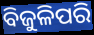
ବିଜୁଳିପରି